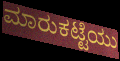
ಮಾರುಕಟ್ಟೆಯು